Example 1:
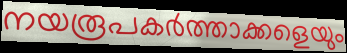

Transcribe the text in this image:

നയരൂപകർത്താക്കളെയും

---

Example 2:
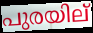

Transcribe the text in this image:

പുരയില്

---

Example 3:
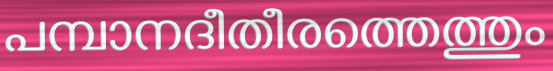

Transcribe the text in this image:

പമ്പാനദീതീരത്തെത്തും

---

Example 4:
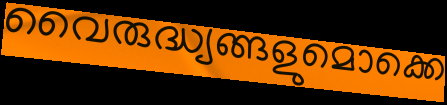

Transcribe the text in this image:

വൈരുദ്ധ്യങ്ങളുമൊക്കെ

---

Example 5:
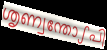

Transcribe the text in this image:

ശൃണ്വന്തോഽപി